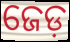
ଜେଡ଼